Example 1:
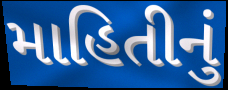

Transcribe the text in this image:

માહિતીનું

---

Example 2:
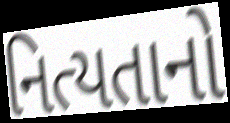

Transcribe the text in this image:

નિત્યતાનો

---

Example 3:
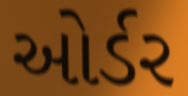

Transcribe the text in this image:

ઓર્ડર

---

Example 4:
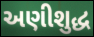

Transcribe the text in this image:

અણીશુદ્ધ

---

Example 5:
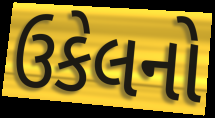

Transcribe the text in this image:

ઉકેલનો